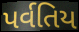
પર્વતિય